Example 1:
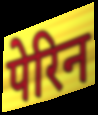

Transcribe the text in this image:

पेरिन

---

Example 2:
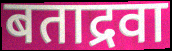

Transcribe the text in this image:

बताद्रवा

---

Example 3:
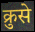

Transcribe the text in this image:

क्रुसे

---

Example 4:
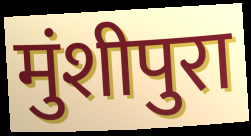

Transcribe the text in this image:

मुंशीपुरा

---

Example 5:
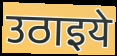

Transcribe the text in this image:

उठाइये